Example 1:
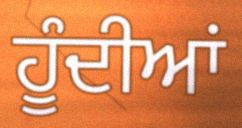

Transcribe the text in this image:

ਹੂੰਦੀਆਂ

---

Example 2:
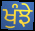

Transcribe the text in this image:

ਖੁੰਝੇ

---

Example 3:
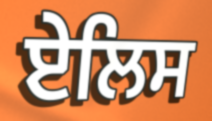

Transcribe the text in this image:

ਏਲਿਸ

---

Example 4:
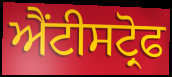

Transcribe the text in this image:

ਐਂਟੀਸਟ੍ਰੋਫ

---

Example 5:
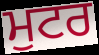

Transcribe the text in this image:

ਮੁਟਰ